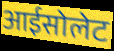
आईसोलेट